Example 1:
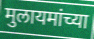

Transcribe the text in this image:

मुलायमांच्या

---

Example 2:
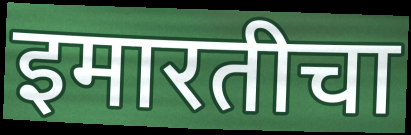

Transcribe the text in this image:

इमारतीचा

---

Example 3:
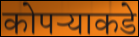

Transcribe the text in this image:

कोपऱ्याकडे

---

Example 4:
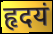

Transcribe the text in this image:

हृदयं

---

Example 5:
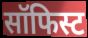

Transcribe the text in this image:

सॉफिस्ट